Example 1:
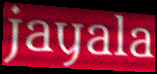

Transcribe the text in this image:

jayala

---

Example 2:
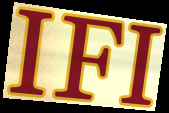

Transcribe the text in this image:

IFI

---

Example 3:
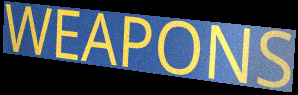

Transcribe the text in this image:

WEAPONS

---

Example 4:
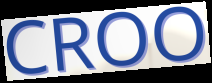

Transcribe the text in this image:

CROO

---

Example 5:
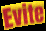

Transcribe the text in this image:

Evite